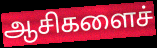
ஆசிகளைச்